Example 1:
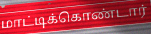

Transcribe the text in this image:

மாட்டிக்கொண்டார்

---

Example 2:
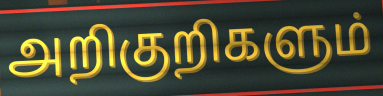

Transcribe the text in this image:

அறிகுறிகளும்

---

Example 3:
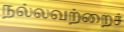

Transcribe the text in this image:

நல்லவற்றைச்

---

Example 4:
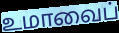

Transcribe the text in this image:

உமாவைப்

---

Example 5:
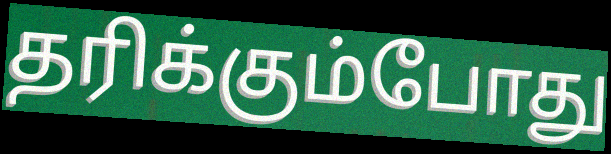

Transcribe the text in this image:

தரிக்கும்போது